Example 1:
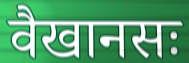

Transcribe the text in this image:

वैखानसः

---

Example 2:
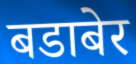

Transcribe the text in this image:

बडाबेर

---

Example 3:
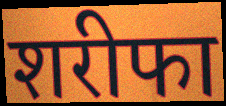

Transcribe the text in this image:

शरीफा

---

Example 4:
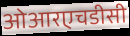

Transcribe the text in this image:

ओआरएचडीसी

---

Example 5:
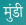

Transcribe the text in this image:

मुंडी